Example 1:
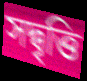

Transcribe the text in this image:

সদ্বৃত্তি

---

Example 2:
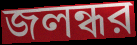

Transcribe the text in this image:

জলন্ধর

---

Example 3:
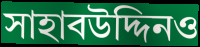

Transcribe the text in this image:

সাহাবউদ্দিনও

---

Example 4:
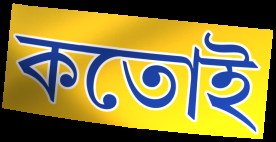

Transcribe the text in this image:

কতোই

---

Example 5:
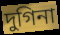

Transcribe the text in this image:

দুগিনা